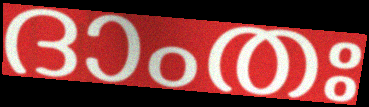
ദാംതഃ